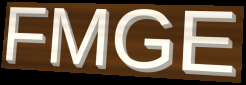
FMGE